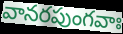
వానరపుంగవాః